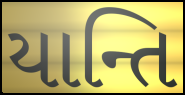
યાન્તિ